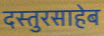
दस्तुरसाहेब